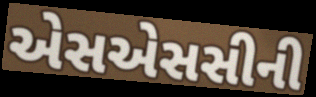
એસએસસીની